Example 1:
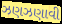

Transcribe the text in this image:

ઝણઝણાવી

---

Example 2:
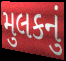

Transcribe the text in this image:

મુલકનું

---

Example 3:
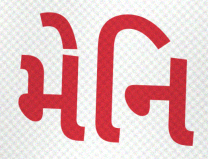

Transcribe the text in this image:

મેનિ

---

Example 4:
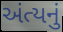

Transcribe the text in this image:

અંત્યનું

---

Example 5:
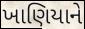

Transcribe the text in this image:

ખાણિયાને